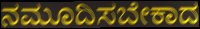
ನಮೂದಿಸಬೇಕಾದ